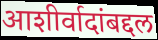
आशीर्वादांबद्दल